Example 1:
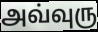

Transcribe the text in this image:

அவ்வுரு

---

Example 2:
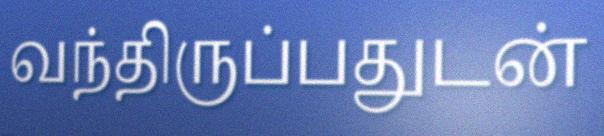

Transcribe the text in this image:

வந்திருப்பதுடன்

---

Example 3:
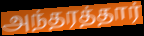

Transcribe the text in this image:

அந்தரத்தார்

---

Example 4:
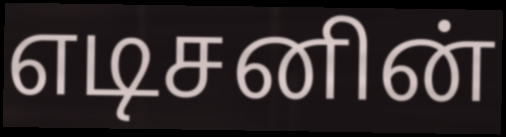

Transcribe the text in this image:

எடிசனின்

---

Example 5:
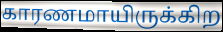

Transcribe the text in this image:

காரணமாயிருக்கிற